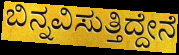
ಬಿನ್ನವಿಸುತ್ತಿದ್ದೇನೆ